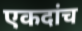
एकदांच